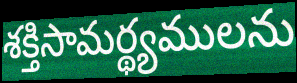
శక్తిసామర్థ్యములను